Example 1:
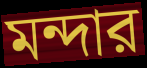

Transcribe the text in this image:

মন্দার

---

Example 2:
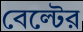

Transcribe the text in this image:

বেল্টের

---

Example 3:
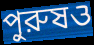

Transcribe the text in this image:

পুরুষও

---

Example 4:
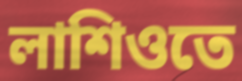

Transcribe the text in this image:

লাশিওতে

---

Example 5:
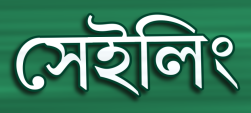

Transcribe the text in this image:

সেইলিং